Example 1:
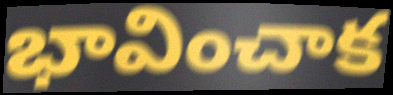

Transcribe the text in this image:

భావించాక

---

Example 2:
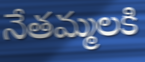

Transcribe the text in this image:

నేతమ్మలకి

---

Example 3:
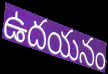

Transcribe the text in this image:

ఉదయనం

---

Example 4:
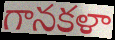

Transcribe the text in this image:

గానకళా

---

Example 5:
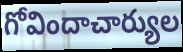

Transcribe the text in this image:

గోవిందాచార్యుల